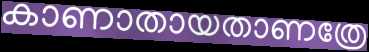
കാണാതായതാണത്രേ